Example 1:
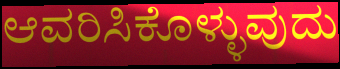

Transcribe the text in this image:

ಆವರಿಸಿಕೊಳ್ಳುವುದು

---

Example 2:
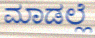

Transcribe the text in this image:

ಮಾಡಲ್ಲೆ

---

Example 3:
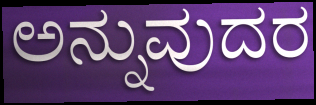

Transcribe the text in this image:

ಅನ್ನುವುದರ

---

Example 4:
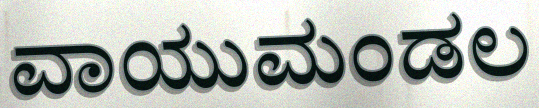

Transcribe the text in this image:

ವಾಯುಮಂಡಲ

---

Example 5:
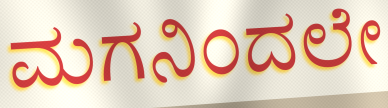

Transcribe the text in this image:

ಮಗನಿಂದಲೇ